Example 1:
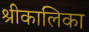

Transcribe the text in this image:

श्रीकालिका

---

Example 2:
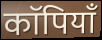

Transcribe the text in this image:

कॉपियाँ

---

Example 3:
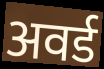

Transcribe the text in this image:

अवर्ड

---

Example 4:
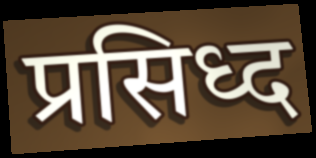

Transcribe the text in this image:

प्रसिध्द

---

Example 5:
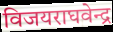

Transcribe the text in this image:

विजयराघवेन्द्र